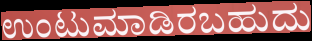
ಉಂಟುಮಾಡಿರಬಹುದು